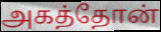
அகத்தோன்